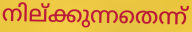
നില്ക്കുന്നതെന്ന്